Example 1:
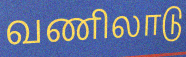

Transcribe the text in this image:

வணிலாடு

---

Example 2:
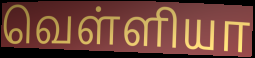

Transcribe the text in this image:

வெள்ளியா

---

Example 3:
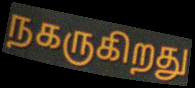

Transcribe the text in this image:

நகருகிறது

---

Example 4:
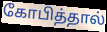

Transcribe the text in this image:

கோபித்தால்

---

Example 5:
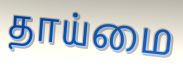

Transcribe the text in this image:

தாய்மை